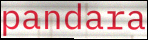
pandara